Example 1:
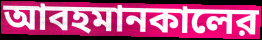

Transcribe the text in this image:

আবহমানকালের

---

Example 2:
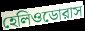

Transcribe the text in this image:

হেলিওডোরাস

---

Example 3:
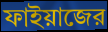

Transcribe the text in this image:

ফাইয়াজের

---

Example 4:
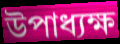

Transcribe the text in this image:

উপাধ্যক্ষ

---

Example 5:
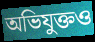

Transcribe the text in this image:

অভিযুক্তও